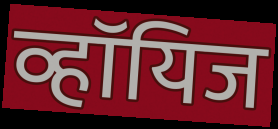
व्हॉयिज